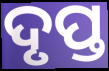
ଦୃପ୍ତ